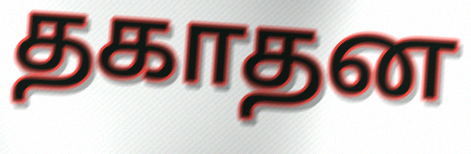
தகாதன